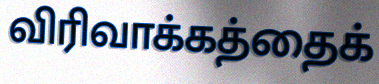
விரிவாக்கத்தைக்